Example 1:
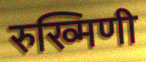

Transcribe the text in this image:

रुख्मिणी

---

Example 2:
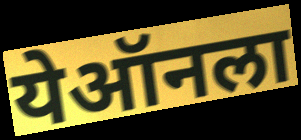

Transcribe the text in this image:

येऑनला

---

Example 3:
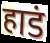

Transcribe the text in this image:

हाडं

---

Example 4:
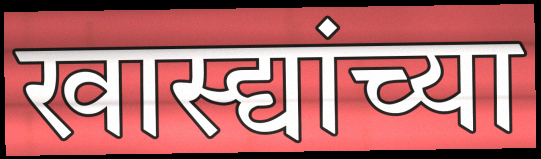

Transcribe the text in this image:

खास्द्यांच्या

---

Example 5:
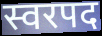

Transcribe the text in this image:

स्वरपद